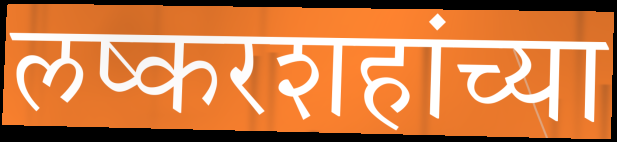
लष्करशहांच्या